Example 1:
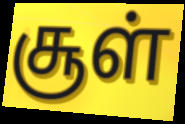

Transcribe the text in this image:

சூள்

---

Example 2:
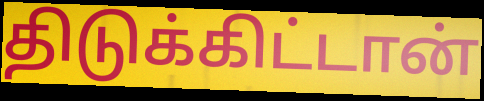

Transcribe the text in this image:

திடுக்கிட்டான்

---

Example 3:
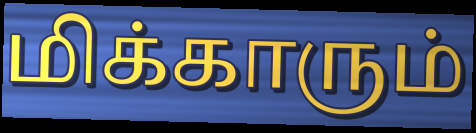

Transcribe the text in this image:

மிக்காரும்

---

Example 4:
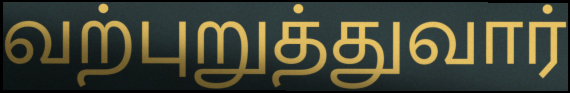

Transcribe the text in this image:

வற்புறுத்துவார்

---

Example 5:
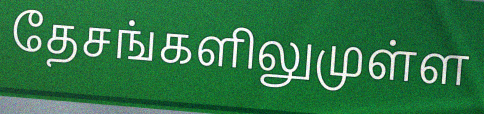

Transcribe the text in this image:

தேசங்களிலுமுள்ள